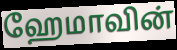
ஹேமாவின்